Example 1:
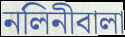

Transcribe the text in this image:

নলিনীবালা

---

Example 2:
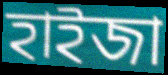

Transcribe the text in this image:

হাইজা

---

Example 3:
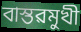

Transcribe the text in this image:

বাস্তৱমুখী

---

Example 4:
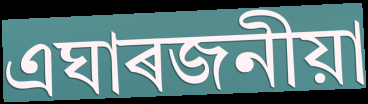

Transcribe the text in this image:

এঘাৰজনীয়া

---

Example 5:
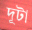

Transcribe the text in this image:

দূটা